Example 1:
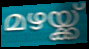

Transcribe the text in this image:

മഴയ്ക്ക്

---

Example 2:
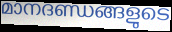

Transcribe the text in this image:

മാനദണ്ഡങ്ങളുടെ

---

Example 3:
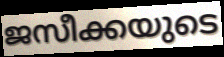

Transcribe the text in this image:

ജസീക്കയുടെ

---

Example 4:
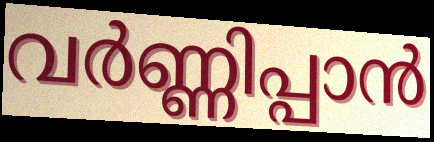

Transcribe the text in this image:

വർണ്ണിപ്പാൻ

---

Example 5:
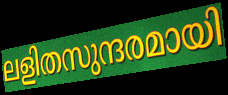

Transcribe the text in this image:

ലളിതസുന്ദരമായി